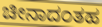
ಚೀನಾದಂತಹ